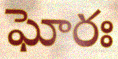
ఘోరః